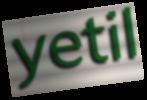
yetil